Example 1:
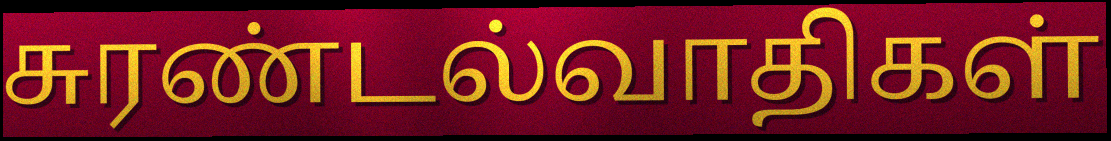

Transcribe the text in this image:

சுரண்டல்வாதிகள்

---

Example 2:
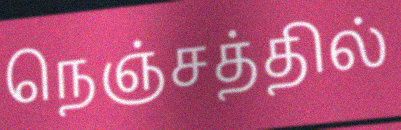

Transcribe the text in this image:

நெஞ்சத்தில்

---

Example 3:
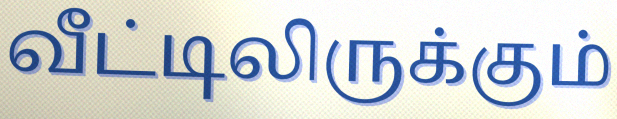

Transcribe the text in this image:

வீட்டிலிருக்கும்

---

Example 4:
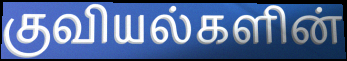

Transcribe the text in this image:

குவியல்களின்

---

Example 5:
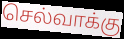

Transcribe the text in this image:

செல்வாக்கு